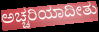
ಅಚ್ಚರಿಯಾದೀತು